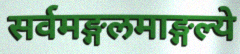
सर्वमङ्गलमाङ्गल्ये